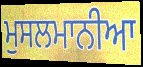
ਮੁਸਲਮਾਨੀਆ